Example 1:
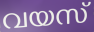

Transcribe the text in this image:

വയസ്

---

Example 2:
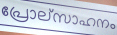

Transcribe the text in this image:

പ്രോല്സാഹനം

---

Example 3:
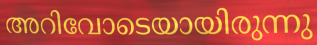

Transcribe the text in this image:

അറിവോടെയായിരുന്നു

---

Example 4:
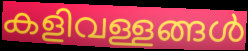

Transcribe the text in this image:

കളിവള്ളങ്ങൾ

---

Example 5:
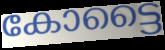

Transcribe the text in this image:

കോട്ടൈ